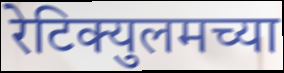
रेटिक्युलमच्या